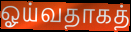
ஓய்வதாகத்